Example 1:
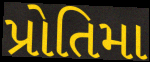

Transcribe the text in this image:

પ્રોતિમા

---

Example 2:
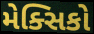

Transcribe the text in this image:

મેક્સિકો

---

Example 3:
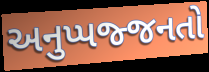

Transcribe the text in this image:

અનુપ્પજ્જનતો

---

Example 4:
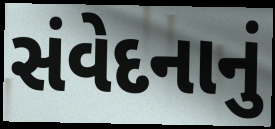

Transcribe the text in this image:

સંવેદનાનું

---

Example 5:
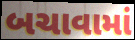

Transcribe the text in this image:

બચાવામાં